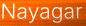
Nayagar